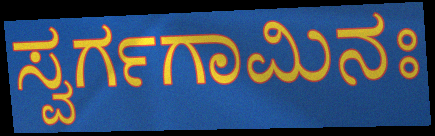
ಸ್ವರ್ಗಗಾಮಿನಃ